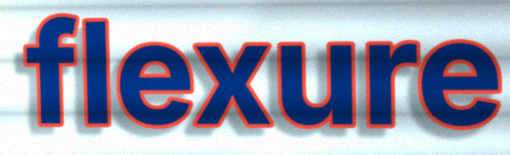
flexure